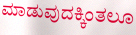
ಮಾಡುವುದಕ್ಕಿಂತಲೂ